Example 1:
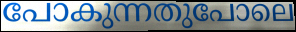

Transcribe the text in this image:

പോകുന്നതുപോലെ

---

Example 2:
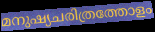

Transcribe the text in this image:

മനുഷ്യചരിത്രത്തോളം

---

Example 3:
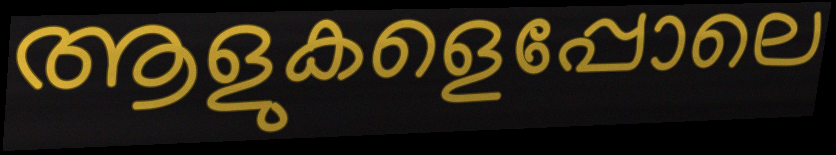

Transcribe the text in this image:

ആളുകളെപ്പോലെ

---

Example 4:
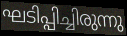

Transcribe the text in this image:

ഘടിപ്പിച്ചിരുന്നു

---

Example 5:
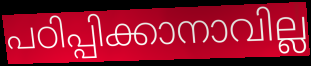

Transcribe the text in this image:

പഠിപ്പിക്കാനാവില്ല